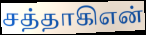
சத்தாகிஎன்